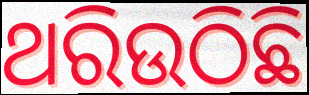
ଥରିଉଠିଛି